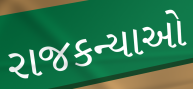
રાજકન્યાઓ